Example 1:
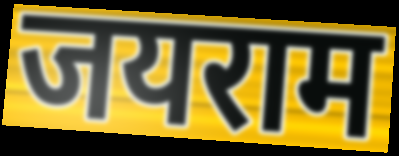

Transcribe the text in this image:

जयराम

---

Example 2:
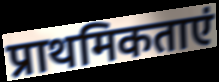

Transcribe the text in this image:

प्राथमिकताएं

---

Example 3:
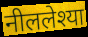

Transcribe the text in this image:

नीललेश्या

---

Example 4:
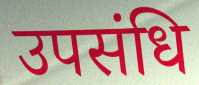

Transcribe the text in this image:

उपसंधि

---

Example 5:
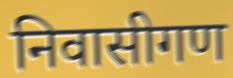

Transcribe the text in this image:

निवासीगण